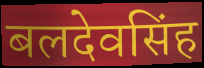
बलदेवसिंह